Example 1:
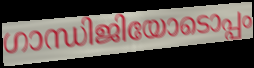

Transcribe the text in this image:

ഗാന്ധിജിയോടൊപ്പം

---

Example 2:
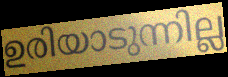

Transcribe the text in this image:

ഉരിയാടുന്നില്ല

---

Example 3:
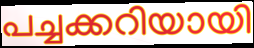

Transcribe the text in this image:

പച്ചക്കറിയായി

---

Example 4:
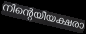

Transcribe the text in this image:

നിന്റെയീയക്ഷരാ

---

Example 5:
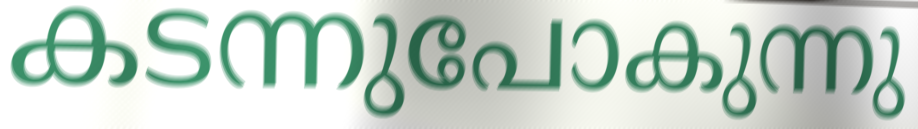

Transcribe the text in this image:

കടന്നുപോകുന്നു